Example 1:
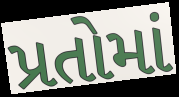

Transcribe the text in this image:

પ્રતોમાં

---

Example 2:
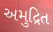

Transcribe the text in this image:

અમુદ્રિત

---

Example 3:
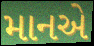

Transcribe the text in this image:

માનએ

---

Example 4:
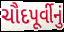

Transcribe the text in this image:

ચૌદપૂર્વીનું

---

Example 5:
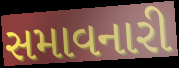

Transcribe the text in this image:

સમાવનારી